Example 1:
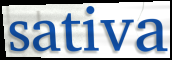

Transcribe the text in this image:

sativa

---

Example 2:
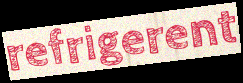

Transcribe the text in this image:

refrigerent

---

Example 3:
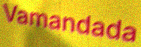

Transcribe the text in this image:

Vamandada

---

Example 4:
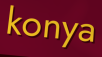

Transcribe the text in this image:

konya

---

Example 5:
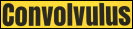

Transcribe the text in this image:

Convolvulus